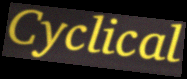
Cyclical